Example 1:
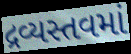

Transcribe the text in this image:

દ્રવ્યસ્તવમાં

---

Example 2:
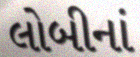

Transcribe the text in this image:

લોબીનાં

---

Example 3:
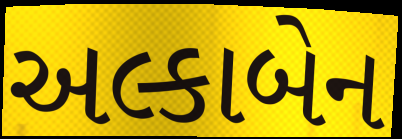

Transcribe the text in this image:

અલ્કાબેન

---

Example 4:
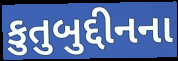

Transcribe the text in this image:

કુતુબુદ્દીનના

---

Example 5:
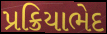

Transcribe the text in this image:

પ્રક્રિયાભેદ